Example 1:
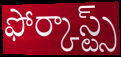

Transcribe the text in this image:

ఫోర్కాస్ట్స్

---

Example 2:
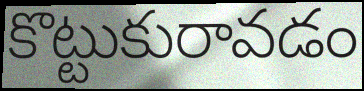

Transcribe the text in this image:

కొట్టుకురావడం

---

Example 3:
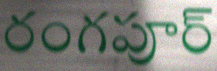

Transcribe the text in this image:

రంగపూర్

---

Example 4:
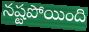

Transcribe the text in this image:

నష్టపోయింది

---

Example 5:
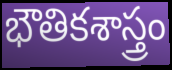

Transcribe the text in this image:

భౌతికశాస్త్రం